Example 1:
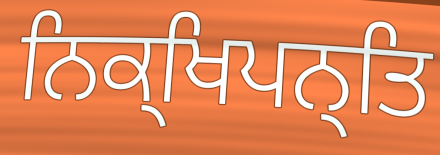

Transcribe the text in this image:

ਨਿਕ੍ਖਿਪਨ੍ਤਿ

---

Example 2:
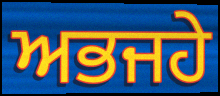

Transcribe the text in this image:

ਅਭਜਹੇ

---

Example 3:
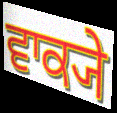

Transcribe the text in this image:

ਵਾਕ੍ਯੇ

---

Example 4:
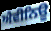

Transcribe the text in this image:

ਐਵੀਨਿਊ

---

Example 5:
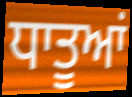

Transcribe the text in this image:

ਧਾਤੂਆਂ